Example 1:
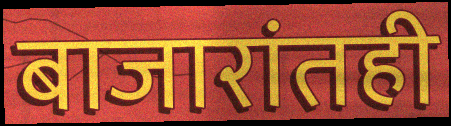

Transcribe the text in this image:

बाजारांतही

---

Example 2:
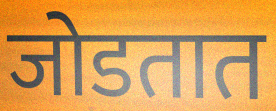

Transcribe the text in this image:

जोडतात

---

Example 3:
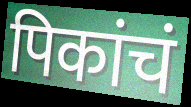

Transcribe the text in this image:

पिकांचं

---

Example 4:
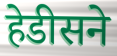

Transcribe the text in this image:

हेडीसने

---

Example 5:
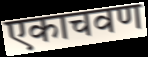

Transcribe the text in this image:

एकाचवण